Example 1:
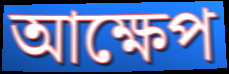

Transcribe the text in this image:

আক্ষেপ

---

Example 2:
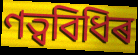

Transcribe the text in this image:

ণত্ববিধিৰ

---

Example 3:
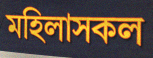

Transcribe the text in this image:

মহিলাসকল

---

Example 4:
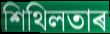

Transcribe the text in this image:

শিথিলতাৰ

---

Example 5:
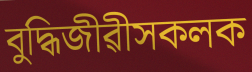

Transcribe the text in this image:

বুদ্ধিজীৱীসকলক